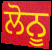
ਲੋਨੂ